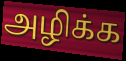
அழிக்க